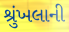
શ્રુંખલાની